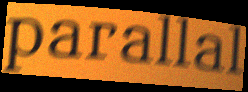
parallal